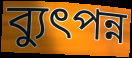
ব্যুৎপন্ন